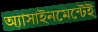
অ্যাসাইনমেন্টেই